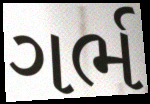
ગર્ભ